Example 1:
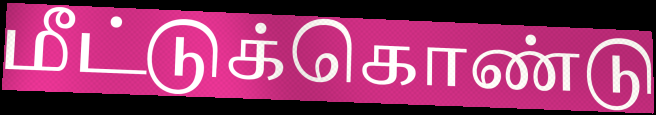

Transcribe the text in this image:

மீட்டுக்கொண்டு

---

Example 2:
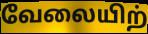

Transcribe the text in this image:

வேலையிற்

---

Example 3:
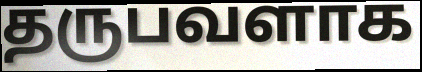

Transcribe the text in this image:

தருபவளாக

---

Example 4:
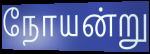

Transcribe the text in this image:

நோயன்று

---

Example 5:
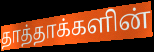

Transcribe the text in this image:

தாத்தாக்களின்